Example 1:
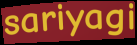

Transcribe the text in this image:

sariyagi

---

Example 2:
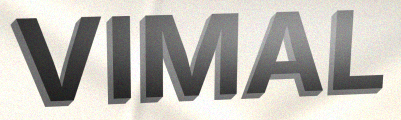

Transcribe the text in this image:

VIMAL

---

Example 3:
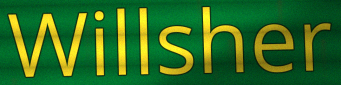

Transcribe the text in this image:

Willsher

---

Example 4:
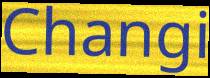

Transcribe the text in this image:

Changi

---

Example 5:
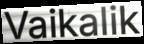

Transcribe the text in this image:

Vaikalik